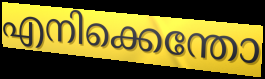
എനിക്കെന്തോ